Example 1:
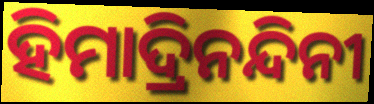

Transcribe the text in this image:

ହିମାଦ୍ରିନନ୍ଦିନୀ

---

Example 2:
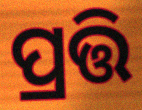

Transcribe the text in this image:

ପ୍ରତ୍ତି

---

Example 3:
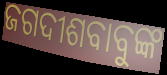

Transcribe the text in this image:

ଜଗଦୀଶବାବୁଙ୍କ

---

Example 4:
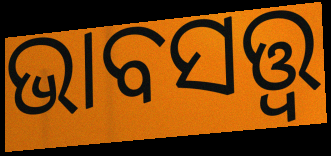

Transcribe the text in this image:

ଭାବସତ୍ତ୍ୱ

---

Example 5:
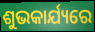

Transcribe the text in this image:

ଶୁଭକାର୍ଯ୍ୟରେ